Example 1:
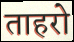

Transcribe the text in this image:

ताहरो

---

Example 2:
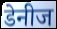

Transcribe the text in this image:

डेनीज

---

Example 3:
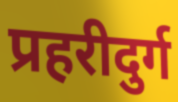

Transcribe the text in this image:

प्रहरीदुर्ग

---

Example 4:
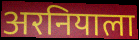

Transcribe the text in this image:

अरनियाला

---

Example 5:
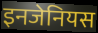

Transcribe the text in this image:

इनजेनियस